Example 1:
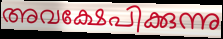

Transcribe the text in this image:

അവക്ഷേപിക്കുന്നു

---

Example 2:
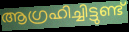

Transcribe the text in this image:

ആഗ്രഹിച്ചിട്ടുണ്ട്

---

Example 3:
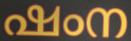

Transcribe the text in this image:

ഷംന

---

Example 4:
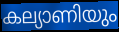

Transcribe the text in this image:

കല്യാണിയും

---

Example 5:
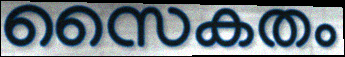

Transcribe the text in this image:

സൈകതം